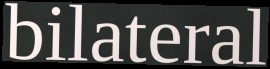
bilateral